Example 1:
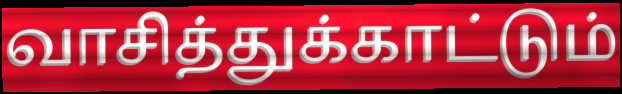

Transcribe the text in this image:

வாசித்துக்காட்டும்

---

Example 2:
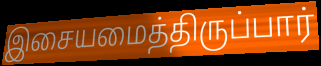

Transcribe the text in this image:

இசையமைத்திருப்பார்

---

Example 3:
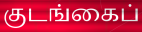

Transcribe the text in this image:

குடங்கைப்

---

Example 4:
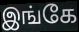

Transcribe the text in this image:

இங்கே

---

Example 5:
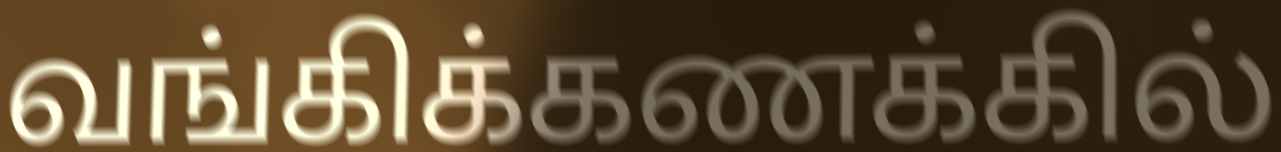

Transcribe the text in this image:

வங்கிக்கணக்கில்